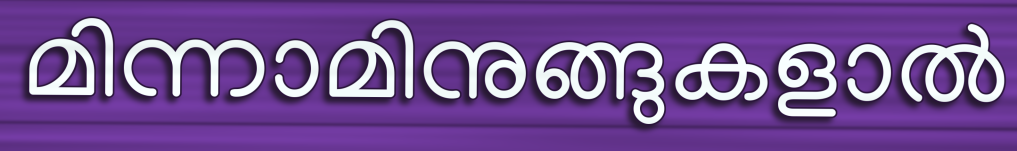
മിന്നാമിനുങ്ങുകളാൽ